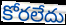
కోరలేదు